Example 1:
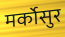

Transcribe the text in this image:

मर्कोसुर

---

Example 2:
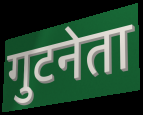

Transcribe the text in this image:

गुटनेता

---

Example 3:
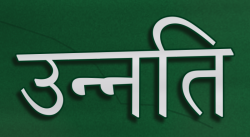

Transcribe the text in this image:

उन्‍नति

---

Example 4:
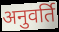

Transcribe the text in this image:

अनुवर्ति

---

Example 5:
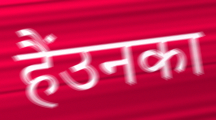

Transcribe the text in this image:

हैंउनका